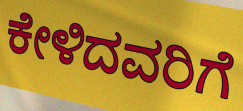
ಕೇಳಿದವರಿಗೆ